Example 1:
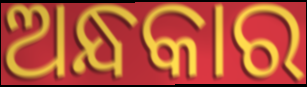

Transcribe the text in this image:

ଅନ୍ଧକାର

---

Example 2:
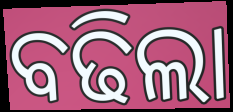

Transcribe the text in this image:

ବଢିଲା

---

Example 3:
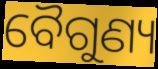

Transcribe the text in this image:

ବୈଗୁଣ୍ୟ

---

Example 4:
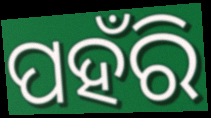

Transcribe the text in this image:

ପହଁରି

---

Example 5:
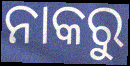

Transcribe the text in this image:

ନାକରୁ